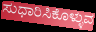
ಸುಧಾರಿಸಿಕೊಳ್ಳುವ